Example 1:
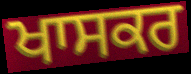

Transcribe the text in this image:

ਖਾਸਕਰ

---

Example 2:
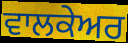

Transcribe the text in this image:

ਵਾਲਕੇਅਰ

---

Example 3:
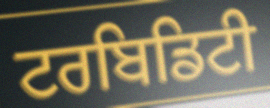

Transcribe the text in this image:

ਟਰਬਿਡਿਟੀ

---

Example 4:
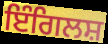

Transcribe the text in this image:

ਇੰਗਿਲਸ਼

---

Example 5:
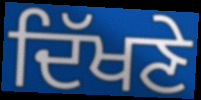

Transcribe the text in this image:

ਦਿੱਖਣੇ